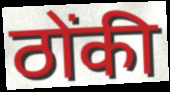
ठोंकी